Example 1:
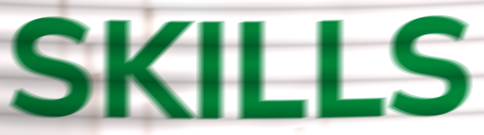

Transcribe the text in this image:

SKILLS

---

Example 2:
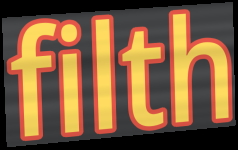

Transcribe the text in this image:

filth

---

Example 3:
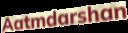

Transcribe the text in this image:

Aatmdarshan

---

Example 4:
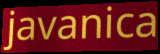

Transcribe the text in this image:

javanica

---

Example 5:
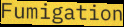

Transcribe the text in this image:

Fumigation